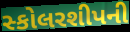
સ્કોલરશીપની